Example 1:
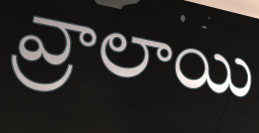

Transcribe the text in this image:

వ్రాలాయి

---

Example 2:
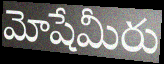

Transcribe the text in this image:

మోషేమీరు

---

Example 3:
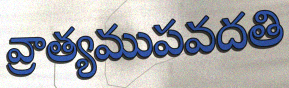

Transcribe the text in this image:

వ్రాత్యముపవదతి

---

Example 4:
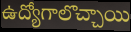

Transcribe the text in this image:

ఉద్యోగాలొచ్చాయి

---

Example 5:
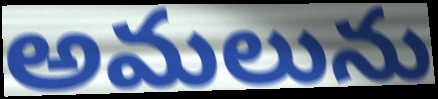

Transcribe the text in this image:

అమలును